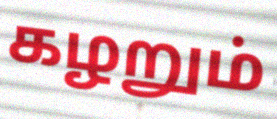
கழறும்